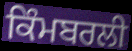
ਕਿੰਮਬਰਲੀ